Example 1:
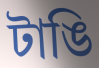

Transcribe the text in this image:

টাঙি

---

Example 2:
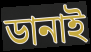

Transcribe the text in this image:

ডানাই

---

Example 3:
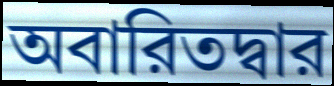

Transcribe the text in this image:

অবারিতদ্বার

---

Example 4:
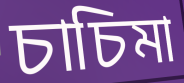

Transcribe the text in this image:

চাচিমা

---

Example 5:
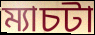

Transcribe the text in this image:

ম্যাচটা